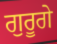
ਗੁਰੂਗੇ